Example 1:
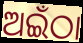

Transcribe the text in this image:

ଅଇଁଠା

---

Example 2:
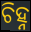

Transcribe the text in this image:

ଚିହ୍ନ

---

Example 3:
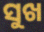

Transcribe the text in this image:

ସୁଖ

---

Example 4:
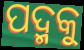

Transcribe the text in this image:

ପଦ୍ମକୁ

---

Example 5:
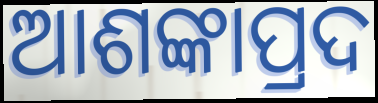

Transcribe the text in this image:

ଆଶଙ୍କାପ୍ରଦ